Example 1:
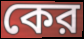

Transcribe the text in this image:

কের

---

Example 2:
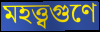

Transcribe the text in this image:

মহত্ত্বগুণে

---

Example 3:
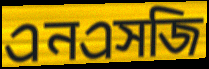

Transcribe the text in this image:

এনএসজি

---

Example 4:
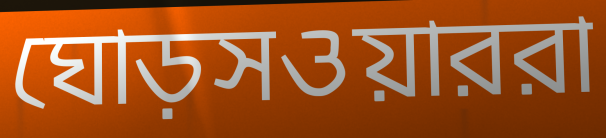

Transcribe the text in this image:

ঘোড়সওয়াররা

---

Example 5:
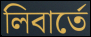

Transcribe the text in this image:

লিবার্তে